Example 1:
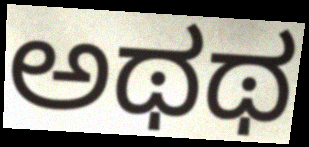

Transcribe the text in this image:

ಅಥಥ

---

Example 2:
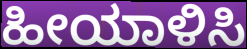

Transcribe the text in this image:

ಹೀಯಾಳಿಸಿ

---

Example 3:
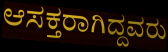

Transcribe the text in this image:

ಆಸಕ್ತರಾಗಿದ್ದವರು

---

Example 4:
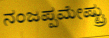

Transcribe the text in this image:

ನಂಜಪ್ಪಮೇಷ್ಟ್ರು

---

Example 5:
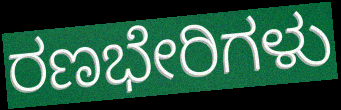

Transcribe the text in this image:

ರಣಭೇರಿಗಳು